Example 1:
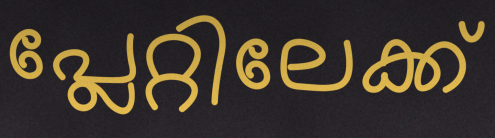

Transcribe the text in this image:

പ്ലേറ്റിലേക്ക്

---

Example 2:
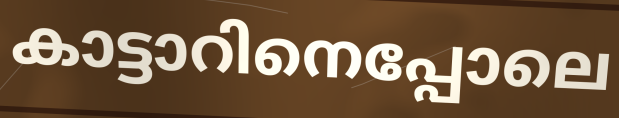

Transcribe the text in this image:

കാട്ടാറിനെപ്പോലെ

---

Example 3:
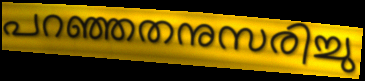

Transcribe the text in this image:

പറഞ്ഞതനുസരിച്ചു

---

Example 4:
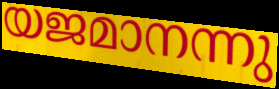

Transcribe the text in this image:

യജമാനന്നു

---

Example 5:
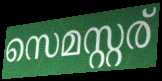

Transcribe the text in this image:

സെമസ്റ്റര്